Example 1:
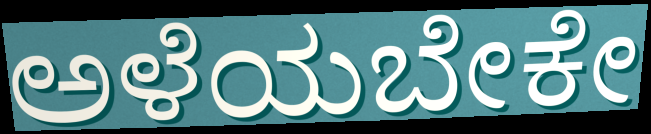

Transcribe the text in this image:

ಅಳೆಯಬೇಕೇ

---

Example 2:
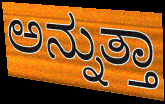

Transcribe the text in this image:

ಅನ್ನುತ್ತಾ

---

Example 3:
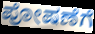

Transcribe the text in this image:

ಪೋಷಣೆಗೆ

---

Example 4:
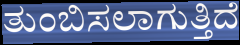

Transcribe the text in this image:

ತುಂಬಿಸಲಾಗುತ್ತಿದೆ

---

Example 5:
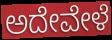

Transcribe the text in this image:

ಅದೇವೇಳೆ